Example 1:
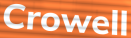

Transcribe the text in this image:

Crowell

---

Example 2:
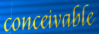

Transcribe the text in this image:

conceivable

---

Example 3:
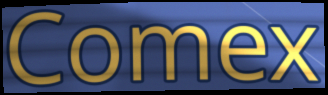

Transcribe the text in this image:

Comex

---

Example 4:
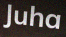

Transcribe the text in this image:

Juha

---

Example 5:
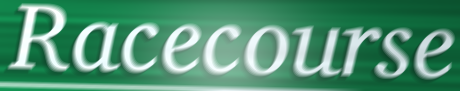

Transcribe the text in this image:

Racecourse